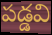
పడ్డవి